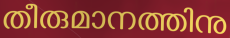
തീരുമാനത്തിനു